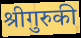
श्रीगुरुकी